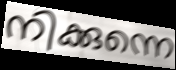
നിക്കുന്നെ